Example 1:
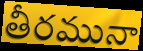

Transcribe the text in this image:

తీరమునా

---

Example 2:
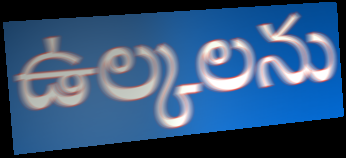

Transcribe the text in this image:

ఉల్కలను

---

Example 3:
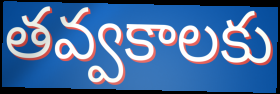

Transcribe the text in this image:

తవ్వకాలకు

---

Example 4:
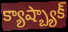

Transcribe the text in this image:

క్యాష్బ్యాక్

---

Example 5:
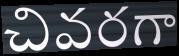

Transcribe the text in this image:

చివరగా